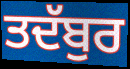
ਤਦੱਬੁਰ